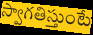
స్వాగతిస్తుంటే